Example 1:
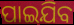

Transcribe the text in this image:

ପାଇଯିବ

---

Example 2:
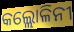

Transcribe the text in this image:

କଲ୍ଲୋଳିନୀ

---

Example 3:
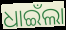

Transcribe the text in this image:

ଧାଇଁଲା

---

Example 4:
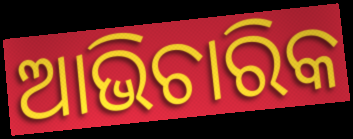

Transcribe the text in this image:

ଆଭିଚାରିକ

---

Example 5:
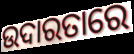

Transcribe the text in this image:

ଉଦାରତାରେ